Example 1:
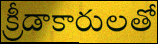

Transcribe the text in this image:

క్రీడాకారులతో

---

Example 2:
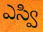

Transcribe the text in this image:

ఎస్వి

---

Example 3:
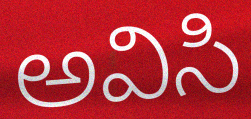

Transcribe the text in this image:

అవిసి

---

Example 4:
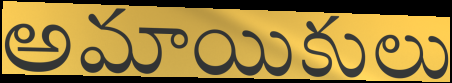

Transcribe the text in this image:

అమాయికులు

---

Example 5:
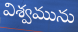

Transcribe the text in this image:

విశ్వమును